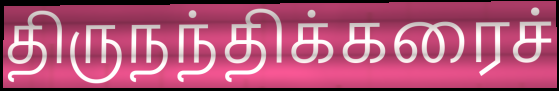
திருநந்திக்கரைச்